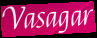
Vasagar